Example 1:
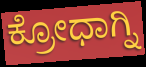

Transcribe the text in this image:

ಕ್ರೋಧಾಗ್ನಿ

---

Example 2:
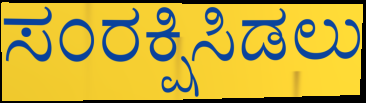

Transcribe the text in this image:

ಸಂರಕ್ಷಿಸಿಡಲು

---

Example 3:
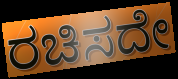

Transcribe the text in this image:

ರಚಿಸದೇ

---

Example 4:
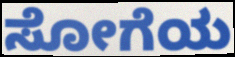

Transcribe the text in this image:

ಸೋಗೆಯ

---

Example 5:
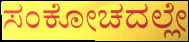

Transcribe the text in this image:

ಸಂಕೋಚದಲ್ಲೇ